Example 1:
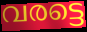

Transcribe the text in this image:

വരട്ടെ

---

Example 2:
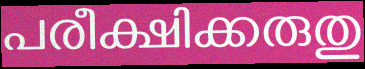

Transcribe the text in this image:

പരീക്ഷിക്കരുതു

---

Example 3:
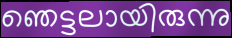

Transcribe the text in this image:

ഞെട്ടലായിരുന്നു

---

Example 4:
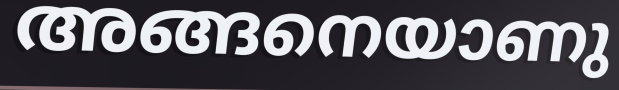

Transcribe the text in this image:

അങ്ങനെയാണു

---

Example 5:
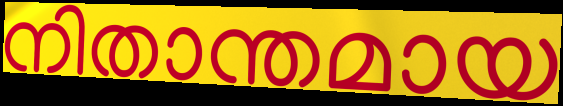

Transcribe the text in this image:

നിതാന്തമായ